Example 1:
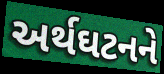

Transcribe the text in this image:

અર્થઘટનને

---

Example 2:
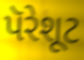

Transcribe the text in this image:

પૅરેશૂટ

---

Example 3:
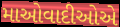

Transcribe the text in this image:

માઓવાદીઓએ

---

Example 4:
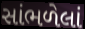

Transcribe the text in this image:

સાંભળેલાં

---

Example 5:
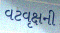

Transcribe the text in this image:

વટવૃક્ષની